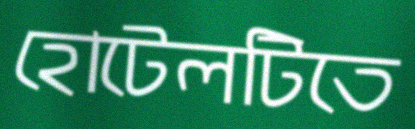
হোটেলটিতে